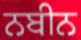
ਨਬੀਨ